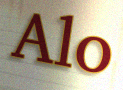
Alo